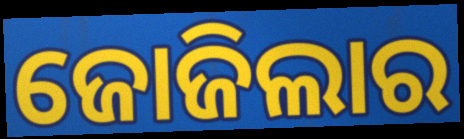
ଜୋଜିଲାର